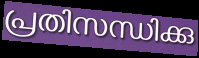
പ്രതിസന്ധിക്കു